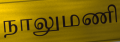
நாலுமணி